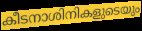
കീടനാശിനികളുടെയും